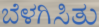
ಬೆಳಗಿಸಿತು